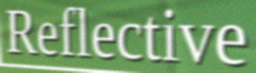
Reflective